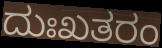
ದುಃಖತರಂ